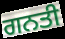
ਗਨਤੀ